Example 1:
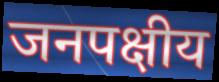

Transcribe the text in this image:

जनपक्षीय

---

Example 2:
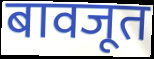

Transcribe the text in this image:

बावजूत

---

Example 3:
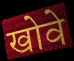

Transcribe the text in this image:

खोवे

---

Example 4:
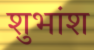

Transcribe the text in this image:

शुभांश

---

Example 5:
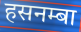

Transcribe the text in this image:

हसनम्बा